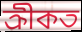
ক্ৰীকত